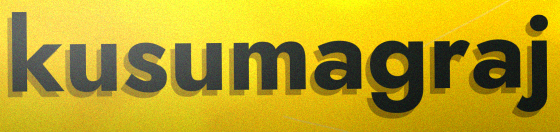
kusumagraj